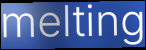
melting